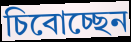
চিবোচ্ছেন